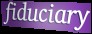
fiduciary